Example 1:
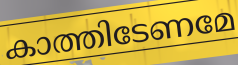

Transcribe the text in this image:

കാത്തിടേണമേ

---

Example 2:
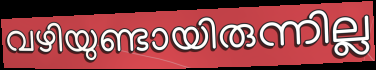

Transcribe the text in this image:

വഴിയുണ്ടായിരുന്നില്ല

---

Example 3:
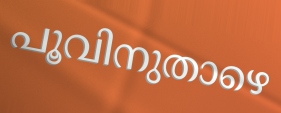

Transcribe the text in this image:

പൂവിനുതാഴെ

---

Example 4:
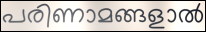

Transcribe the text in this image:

പരിണാമങ്ങളാൽ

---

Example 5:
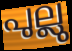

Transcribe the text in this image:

പുല്ലു